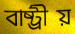
বাষ্ট্রীয়